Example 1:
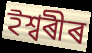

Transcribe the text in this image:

ইশ্বৰীৰ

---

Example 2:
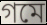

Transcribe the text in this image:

গমে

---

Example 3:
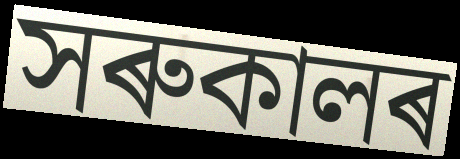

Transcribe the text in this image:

সৰুকালৰ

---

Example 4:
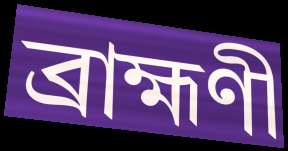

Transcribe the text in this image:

ব্ৰাহ্মণী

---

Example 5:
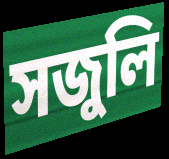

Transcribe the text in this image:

সজুলি